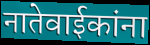
नातेवाईकांना